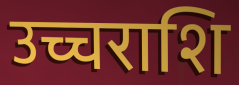
उच्चराशि